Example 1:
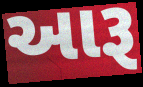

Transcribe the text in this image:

આરૂ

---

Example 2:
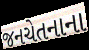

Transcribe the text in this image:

જનચેતનાના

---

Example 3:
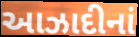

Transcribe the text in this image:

આઝાદીનાં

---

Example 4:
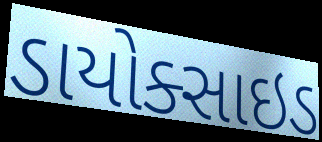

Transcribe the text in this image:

ડાયોક્સાઇડ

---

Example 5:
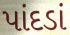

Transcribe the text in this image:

પાંદડાં